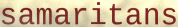
samaritans